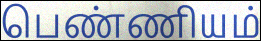
பெண்ணியம்